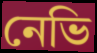
নেভি